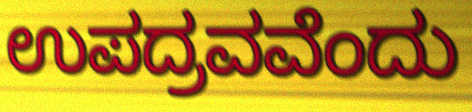
ಉಪದ್ರವವೆಂದು